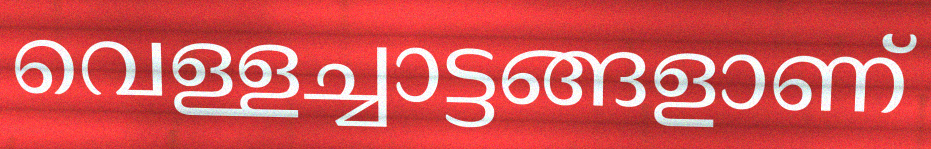
വെള്ളച്ചാട്ടങ്ങളാണ്